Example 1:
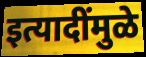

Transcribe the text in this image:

इत्यादींमुळे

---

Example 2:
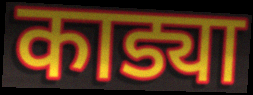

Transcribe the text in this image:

काड्या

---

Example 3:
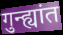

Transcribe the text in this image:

गुन्ह्यांत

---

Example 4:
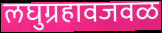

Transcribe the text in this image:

लघुग्रहावजवळ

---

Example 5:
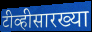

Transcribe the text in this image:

टीव्हीसारख्या